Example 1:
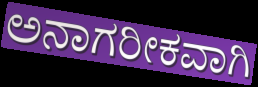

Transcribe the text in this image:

ಅನಾಗರೀಕವಾಗಿ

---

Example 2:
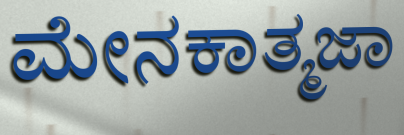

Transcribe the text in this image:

ಮೇನಕಾತ್ಮಜಾ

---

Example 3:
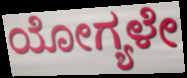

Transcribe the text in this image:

ಯೋಗ್ಯಳೇ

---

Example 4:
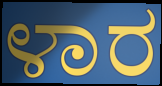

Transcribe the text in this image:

ಳಾರ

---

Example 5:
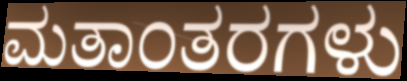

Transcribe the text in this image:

ಮತಾಂತರಗಳು